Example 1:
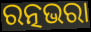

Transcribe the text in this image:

ରତ୍ନଭରା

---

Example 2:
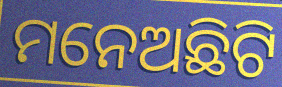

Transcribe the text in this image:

ମନେଅଛିଟି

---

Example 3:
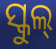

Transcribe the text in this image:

ସ୍କୁଲ୍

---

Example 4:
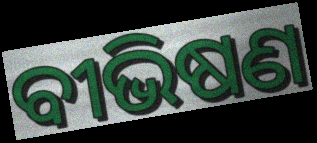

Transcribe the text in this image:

ବୀଭିଷଣ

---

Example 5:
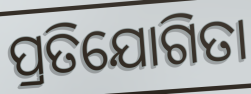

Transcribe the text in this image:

ପ୍ରତିଯୋଗିତା